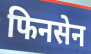
फिनसेन